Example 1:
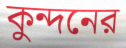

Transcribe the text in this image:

কুন্দনের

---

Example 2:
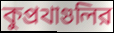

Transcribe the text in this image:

কুপ্রথাগুলির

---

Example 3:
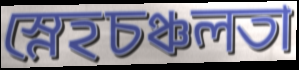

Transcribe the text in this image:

স্নেহচঞ্চলতা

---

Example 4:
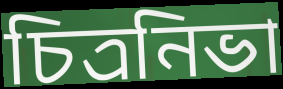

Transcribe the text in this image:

চিত্রনিভা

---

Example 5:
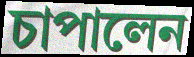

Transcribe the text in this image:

চাপালেন